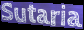
Sutaria